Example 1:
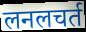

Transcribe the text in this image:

लनलचर्त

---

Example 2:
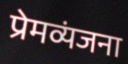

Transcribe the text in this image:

प्रेमव्यंजना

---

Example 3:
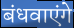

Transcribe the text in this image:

बंधवाएंगे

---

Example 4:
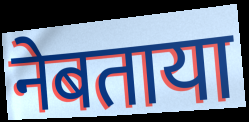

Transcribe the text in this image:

नेबताया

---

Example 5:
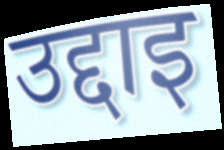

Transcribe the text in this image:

उद्दाइ